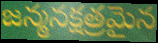
జన్మనక్షత్రమైన